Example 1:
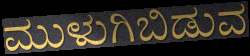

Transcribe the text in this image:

ಮುಳುಗಿಬಿಡುವ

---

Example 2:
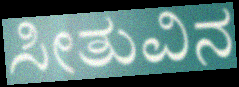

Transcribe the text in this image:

ಸೀತುವಿನ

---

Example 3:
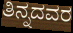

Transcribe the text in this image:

ತಿನ್ನದವರ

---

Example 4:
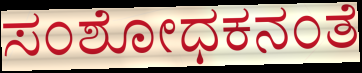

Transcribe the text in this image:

ಸಂಶೋಧಕನಂತೆ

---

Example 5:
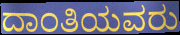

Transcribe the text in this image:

ದಾಂತಿಯವರು